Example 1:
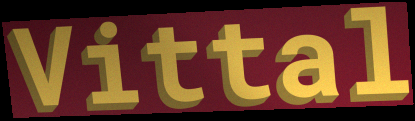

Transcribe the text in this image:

Vittal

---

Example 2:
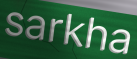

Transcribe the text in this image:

sarkha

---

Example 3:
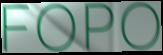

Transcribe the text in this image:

FOPO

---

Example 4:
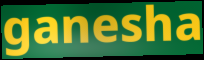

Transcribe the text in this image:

ganesha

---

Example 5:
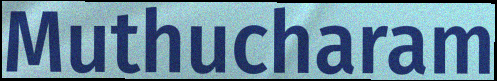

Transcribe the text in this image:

Muthucharam